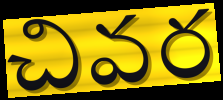
చివర